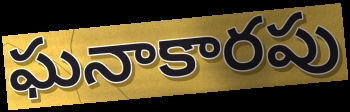
ఘనాకారపు